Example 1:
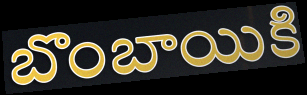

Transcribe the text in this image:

బొంబాయికి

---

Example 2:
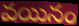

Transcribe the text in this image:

వయినం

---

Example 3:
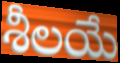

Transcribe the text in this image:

శీలయే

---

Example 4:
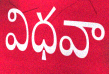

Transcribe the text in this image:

విధవా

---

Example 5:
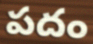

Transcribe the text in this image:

పదం